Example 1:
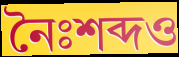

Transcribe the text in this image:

নৈঃশব্দও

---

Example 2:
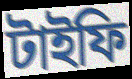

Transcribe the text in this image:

টাইফি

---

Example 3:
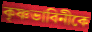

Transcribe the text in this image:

কৃষ্ণভাবিনীকে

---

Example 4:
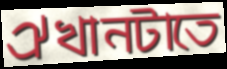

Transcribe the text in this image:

ঐখানটাতে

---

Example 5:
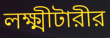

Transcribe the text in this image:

লক্ষ্মীটারীর